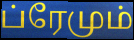
ப்ரேமும்